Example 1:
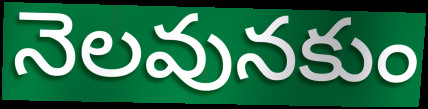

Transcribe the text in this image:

నెలవునకుం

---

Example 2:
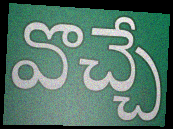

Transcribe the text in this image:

వొచ్చే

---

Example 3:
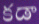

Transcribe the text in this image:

కడా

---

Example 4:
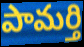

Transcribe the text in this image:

పామర్తి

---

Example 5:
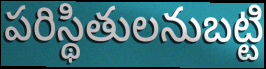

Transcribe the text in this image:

పరిస్థితులనుబట్టి